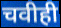
चवीही